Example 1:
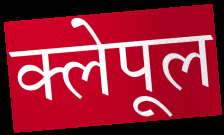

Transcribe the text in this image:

क्लेपूल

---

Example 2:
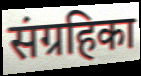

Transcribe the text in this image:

संग्रहिका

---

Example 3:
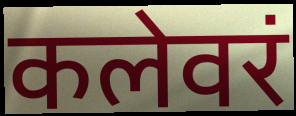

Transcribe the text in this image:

कलेवरं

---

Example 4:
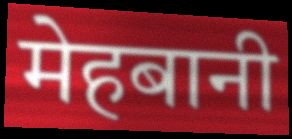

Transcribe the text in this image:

मेहबानी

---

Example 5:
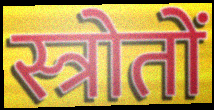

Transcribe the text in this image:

स्त्रोतों